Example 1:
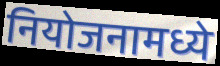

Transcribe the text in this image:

नियोजनामध्ये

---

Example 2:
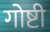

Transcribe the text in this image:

गोष्टी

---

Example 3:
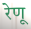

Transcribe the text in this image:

रेणू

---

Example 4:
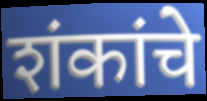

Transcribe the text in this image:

शंकांचे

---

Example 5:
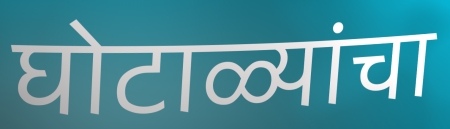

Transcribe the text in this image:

घोटाळ्यांचा